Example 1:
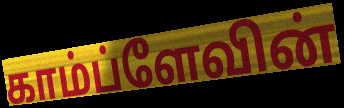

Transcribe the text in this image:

காம்ப்ளேவின்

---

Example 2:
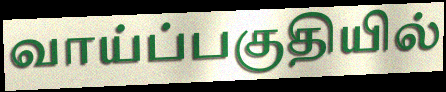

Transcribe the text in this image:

வாய்ப்பகுதியில்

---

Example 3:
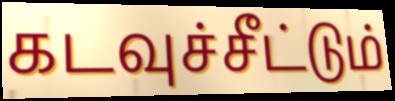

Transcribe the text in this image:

கடவுச்சீட்டும்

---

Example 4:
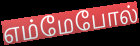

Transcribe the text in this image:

எம்மேபோல்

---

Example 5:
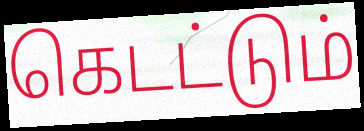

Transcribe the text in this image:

கெடட்டும்